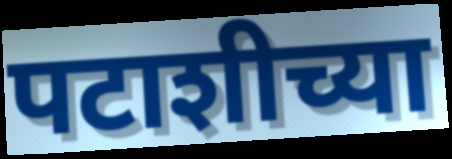
पटाशीच्या